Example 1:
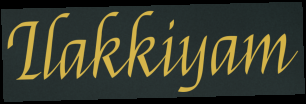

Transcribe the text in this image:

Ilakkiyam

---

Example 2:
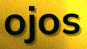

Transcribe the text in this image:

ojos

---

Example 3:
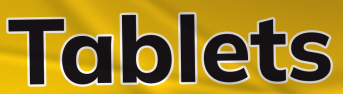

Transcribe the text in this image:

Tablets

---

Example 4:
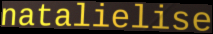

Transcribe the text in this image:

natalielise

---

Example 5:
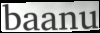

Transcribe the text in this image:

baanu